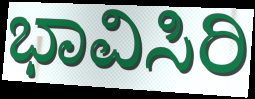
ಭಾವಿಸಿರಿ